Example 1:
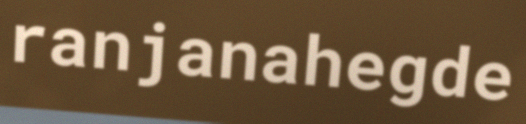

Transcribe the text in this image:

ranjanahegde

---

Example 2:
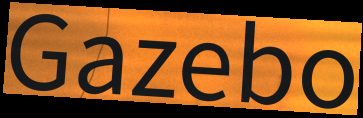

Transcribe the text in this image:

Gazebo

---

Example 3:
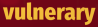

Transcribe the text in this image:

vulnerary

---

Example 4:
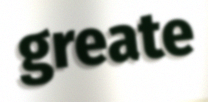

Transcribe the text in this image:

greate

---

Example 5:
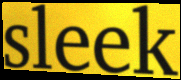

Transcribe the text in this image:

sleek